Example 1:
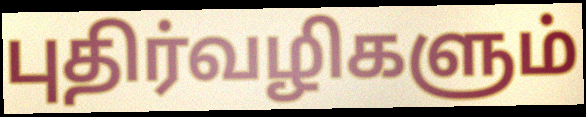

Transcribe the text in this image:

புதிர்வழிகளும்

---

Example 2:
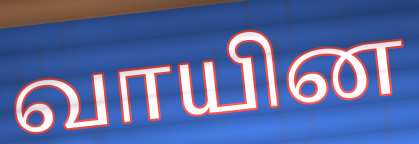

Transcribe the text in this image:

வாயின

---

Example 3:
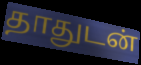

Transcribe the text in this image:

தாதுடன்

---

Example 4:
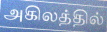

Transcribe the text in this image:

அகிலத்தில்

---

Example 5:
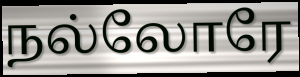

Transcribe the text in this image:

நல்லோரே